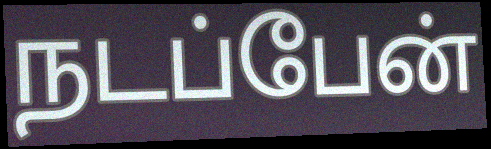
நடப்பேன்